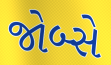
જોબ્સે